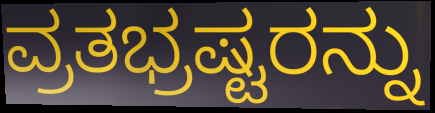
ವ್ರತಭ್ರಷ್ಟರನ್ನು